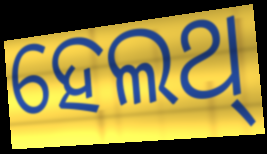
ହେଲଥ୍